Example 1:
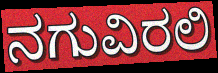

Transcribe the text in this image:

ನಗುವಿರಲಿ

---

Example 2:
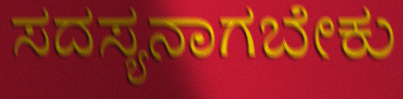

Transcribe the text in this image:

ಸದಸ್ಯನಾಗಬೇಕು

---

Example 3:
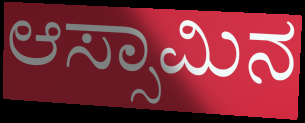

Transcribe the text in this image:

ಆಸ್ಸಾಮಿನ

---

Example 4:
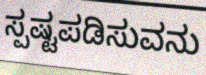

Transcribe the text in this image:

ಸ್ಪಷ್ಟಪಡಿಸುವನು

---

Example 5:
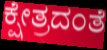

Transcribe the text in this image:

ಕ್ಷೇತ್ರದಂತೆ